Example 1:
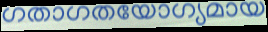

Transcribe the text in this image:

ഗതാഗതയോഗ്യമായ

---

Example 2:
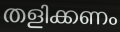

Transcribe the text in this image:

തളിക്കണം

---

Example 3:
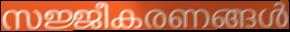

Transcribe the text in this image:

സജ്ജീകരണങ്ങൾ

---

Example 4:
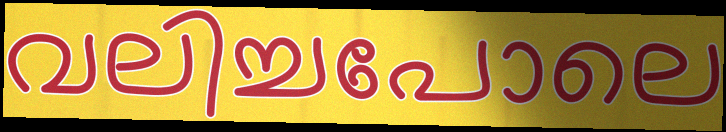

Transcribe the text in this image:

വലിച്ചപോലെ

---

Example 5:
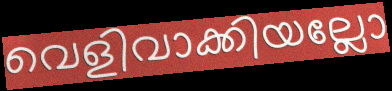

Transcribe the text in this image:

വെളിവാക്കിയല്ലോ